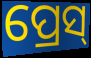
ପ୍ରେସ୍